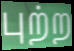
புற்ற